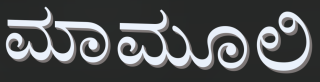
ಮಾಮೂಲಿ